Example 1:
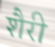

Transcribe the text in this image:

शैरी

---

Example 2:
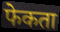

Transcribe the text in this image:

फेकता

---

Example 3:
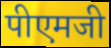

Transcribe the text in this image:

पीएमजी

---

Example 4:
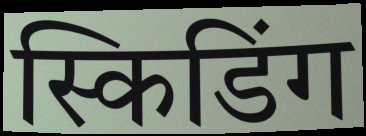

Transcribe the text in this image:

स्किडिंग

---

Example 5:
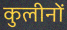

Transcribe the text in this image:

कुलीनों